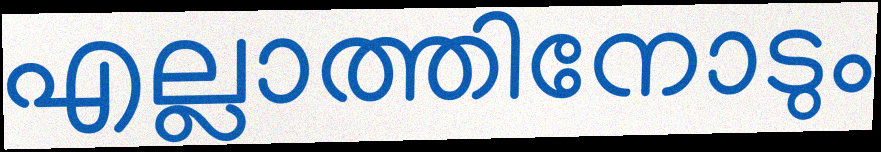
എല്ലാത്തിനോടും